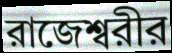
রাজেশ্বরীর